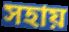
সহায়